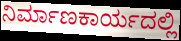
ನಿರ್ಮಾಣಕಾರ್ಯದಲ್ಲಿ